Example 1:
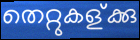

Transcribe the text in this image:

തെറ്റുകള്ക്കു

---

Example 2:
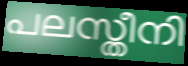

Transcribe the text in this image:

പലസ്തീനി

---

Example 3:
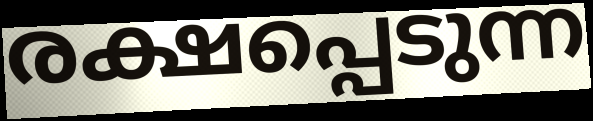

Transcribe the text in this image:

രക്ഷപ്പെടുന്ന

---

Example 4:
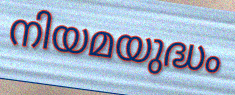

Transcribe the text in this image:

നിയമയുദ്ധം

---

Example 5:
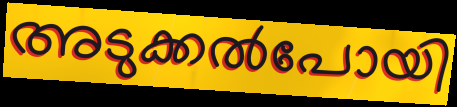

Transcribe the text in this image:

അടുക്കൽപോയി